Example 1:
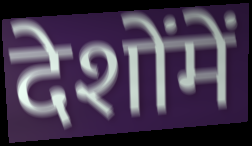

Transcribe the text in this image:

देशोंमें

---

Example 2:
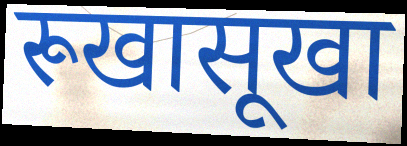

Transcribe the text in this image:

रूखासूखा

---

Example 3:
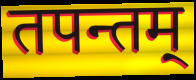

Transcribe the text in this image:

तपन्तम्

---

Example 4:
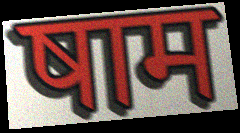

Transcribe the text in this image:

षाम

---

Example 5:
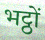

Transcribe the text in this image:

भट्ठों